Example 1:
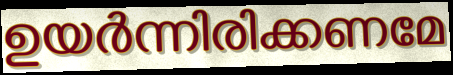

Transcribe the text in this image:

ഉയർന്നിരിക്കണമേ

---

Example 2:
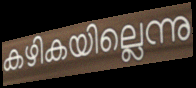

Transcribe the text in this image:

കഴികയില്ലെന്നു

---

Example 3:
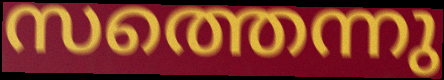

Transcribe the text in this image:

സത്തെന്നു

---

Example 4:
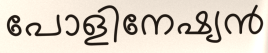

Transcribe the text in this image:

പോളിനേഷ്യൻ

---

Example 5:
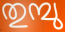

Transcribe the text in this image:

തുമ്പു